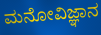
ಮನೋವಿಜ್ಞಾನ